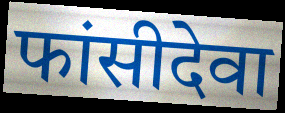
फांसीदेवा